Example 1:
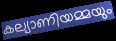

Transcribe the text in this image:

കല്യാണിയമ്മയും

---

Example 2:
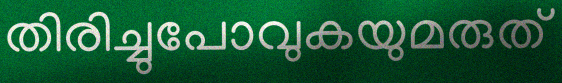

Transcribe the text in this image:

തിരിച്ചുപോവുകയുമരുത്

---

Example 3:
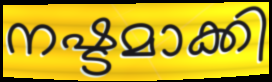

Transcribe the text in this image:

നഷ്ടമാക്കി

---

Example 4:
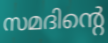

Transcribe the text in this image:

സമദിന്റെ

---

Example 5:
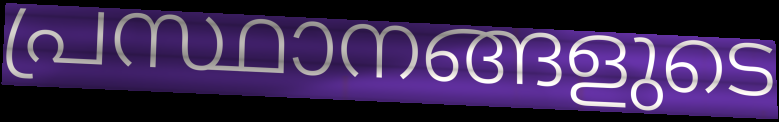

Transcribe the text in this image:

പ്രസ്ഥാനങ്ങളുടെ